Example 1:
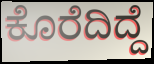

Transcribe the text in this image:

ಕೊರೆದಿದ್ದೆ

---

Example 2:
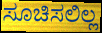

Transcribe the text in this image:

ಸೂಚಿಸಲಿಲ್ಲ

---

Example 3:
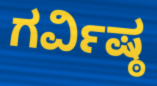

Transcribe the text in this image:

ಗರ್ವಿಷ್ಠ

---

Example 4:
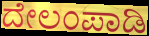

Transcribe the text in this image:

ದೇಲಂಪಾಡಿ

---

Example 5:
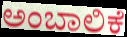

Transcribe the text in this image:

ಅಂಬಾಲಿಕೆ